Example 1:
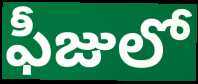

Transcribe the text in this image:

ఫీజులో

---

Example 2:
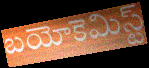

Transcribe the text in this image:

బయోకెమిస్ట్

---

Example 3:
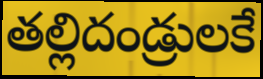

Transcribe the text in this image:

తల్లిదండ్రులకే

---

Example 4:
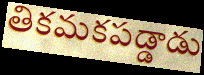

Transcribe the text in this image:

తికమకపడ్డాడు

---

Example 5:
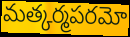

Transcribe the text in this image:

మత్కర్మపరమో